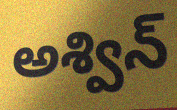
అశ్విన్